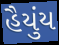
હૈયુંય